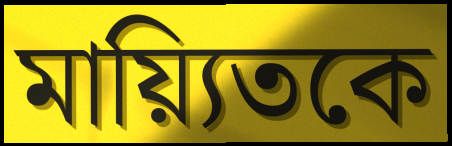
মায়্যিতকে